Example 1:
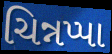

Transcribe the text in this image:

ચિન્નપ્પા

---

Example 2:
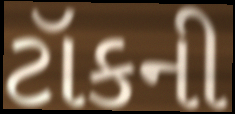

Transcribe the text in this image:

ટૉકની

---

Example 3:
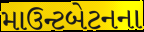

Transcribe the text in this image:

માઉન્ટબેટનના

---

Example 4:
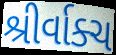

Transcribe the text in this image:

શ્રીર્વાક્ચ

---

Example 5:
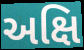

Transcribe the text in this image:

અક્ષિ